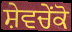
ਸ਼ੇਵਚੇਂਕੋ